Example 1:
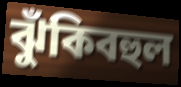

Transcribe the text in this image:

ঝুঁকিবহুল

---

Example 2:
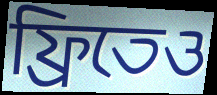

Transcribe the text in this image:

ফ্রিতেও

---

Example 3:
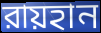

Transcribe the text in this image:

রায়হান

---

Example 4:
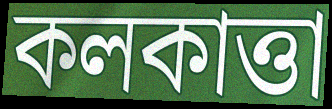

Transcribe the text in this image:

কলকাত্তা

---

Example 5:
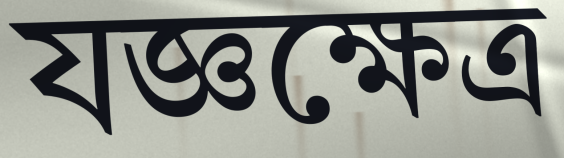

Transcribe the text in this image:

যজ্ঞক্ষেত্র